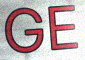
GE